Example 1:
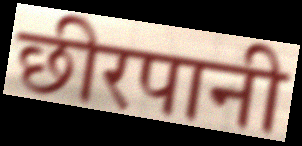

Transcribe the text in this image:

छीरपानी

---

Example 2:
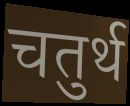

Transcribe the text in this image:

चतुर्थ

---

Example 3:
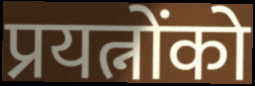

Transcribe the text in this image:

प्रयत्नोंको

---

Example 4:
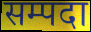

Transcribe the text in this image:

सम्पदा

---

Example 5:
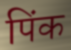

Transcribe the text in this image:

पिंक